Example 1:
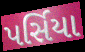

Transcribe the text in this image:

પર્સિયા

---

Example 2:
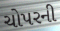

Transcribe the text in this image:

ચોપરની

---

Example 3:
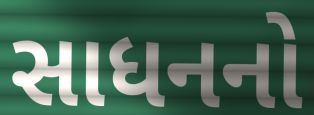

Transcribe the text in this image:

સાધનનો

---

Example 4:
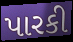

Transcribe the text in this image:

પારકી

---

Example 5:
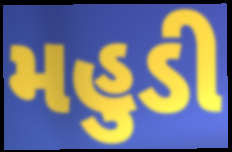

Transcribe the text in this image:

મહુડી